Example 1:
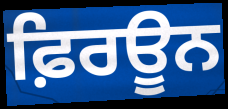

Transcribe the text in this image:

ਫ਼ਿਰਊਨ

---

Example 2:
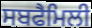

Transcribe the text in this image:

ਸਬਫੈਮਿਲੀ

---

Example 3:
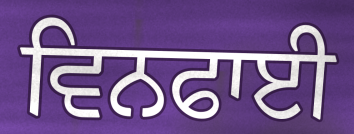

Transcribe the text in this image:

ਵਿਨਫਾਈ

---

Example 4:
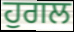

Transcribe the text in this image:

ਹੁਗਲ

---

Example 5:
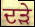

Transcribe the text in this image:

ਦੜੇ